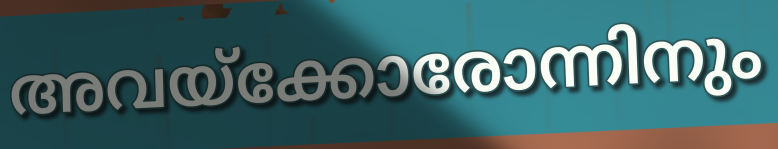
അവയ്ക്കോരോന്നിനും